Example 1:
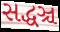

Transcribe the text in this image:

સદ્ધઞ્ચ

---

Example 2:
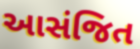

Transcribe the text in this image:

આસંજિત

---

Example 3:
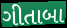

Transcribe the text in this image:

ગીતાબા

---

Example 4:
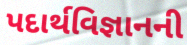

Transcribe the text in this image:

પદાર્થવિજ્ઞાનની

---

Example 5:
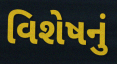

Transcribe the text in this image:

વિશેષનું